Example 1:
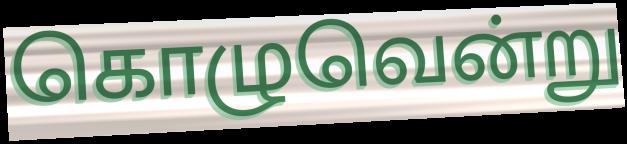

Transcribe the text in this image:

கொழுவென்று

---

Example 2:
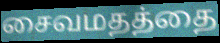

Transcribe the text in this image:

சைவமதத்தை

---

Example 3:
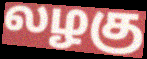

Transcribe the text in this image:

லழகு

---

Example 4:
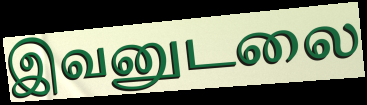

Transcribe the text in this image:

இவனுடலை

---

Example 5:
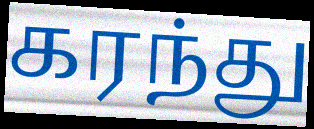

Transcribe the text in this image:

கரந்து